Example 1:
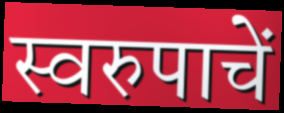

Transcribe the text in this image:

स्वरुपाचें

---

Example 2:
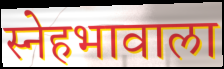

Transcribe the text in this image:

स्नेहभावाला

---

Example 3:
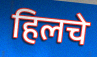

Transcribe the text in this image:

हिलचे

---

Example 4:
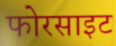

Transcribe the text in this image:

फोरसाइट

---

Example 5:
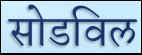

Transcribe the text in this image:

सोडविल